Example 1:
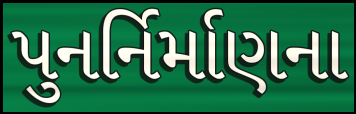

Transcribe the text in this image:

પુનર્નિર્માણના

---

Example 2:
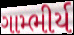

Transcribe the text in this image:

ગામ્ભીર્ય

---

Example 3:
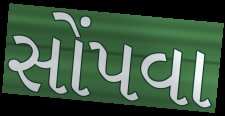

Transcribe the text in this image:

સોંપવા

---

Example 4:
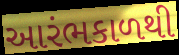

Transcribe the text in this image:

આરંભકાળથી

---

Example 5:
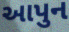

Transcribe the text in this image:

આપુન